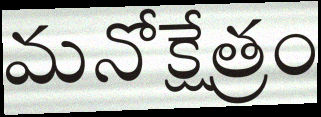
మనోక్షేత్రం